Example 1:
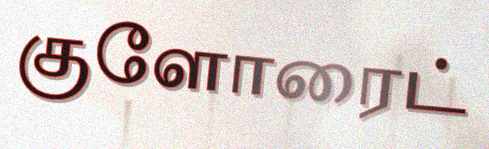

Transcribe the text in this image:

குளோரைட்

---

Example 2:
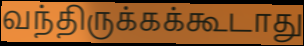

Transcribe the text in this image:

வந்திருக்கக்கூடாது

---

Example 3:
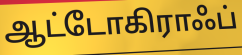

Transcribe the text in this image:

ஆட்டோகிராஃப்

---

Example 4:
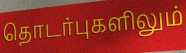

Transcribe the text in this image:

தொடர்புகளிலும்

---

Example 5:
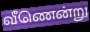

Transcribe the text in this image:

வீணென்று